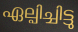
ഏല്പിച്ചിട്ടു